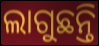
ଲାଗୁଛନ୍ତି